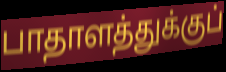
பாதாளத்துக்குப்